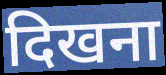
दिखना